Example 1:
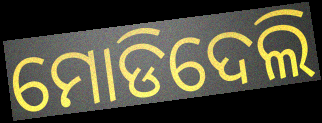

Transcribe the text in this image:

ମୋଡିଦେଲି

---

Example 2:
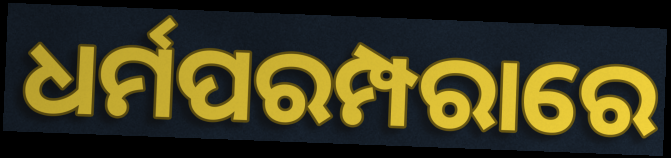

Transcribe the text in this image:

ଧର୍ମପରମ୍ପରାରେ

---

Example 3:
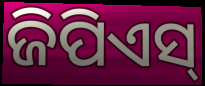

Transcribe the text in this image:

ଜିପିଏସ୍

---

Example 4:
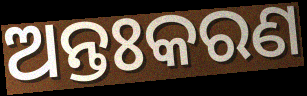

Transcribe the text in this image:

ଅନ୍ତଃକରଣ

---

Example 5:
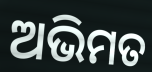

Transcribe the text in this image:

ଅଭିମତ